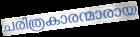
ചരിത്രകാരന്മാരായ